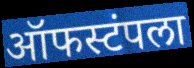
ऑफस्टंपला